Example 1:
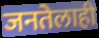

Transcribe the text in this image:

जनतेलाही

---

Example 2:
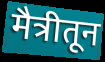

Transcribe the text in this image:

मैत्रीतून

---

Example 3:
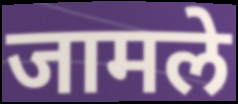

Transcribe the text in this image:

जामले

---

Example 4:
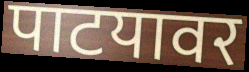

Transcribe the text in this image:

पाटयावर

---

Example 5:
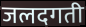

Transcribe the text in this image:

जलदगती